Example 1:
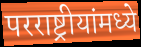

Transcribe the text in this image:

परराष्ट्रीयांमध्ये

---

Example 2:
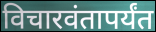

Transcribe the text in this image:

विचारवंतापर्यंत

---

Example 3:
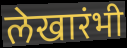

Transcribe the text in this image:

लेखारंभी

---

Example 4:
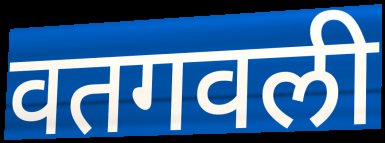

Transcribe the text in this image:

वतगवली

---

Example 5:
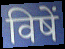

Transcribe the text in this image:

विषें